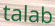
talab